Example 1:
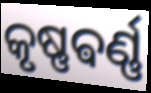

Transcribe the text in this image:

କୃଷ୍ଣଵର୍ଣ୍ଣ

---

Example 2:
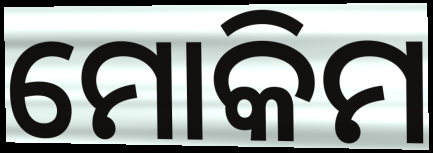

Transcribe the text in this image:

ମୋକିମ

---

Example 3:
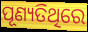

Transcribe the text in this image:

ପୂଣ୍ୟତିଥିରେ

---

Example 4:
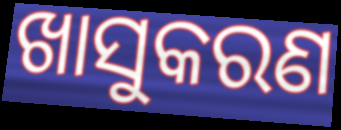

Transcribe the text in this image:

ଖାସୁକରଣ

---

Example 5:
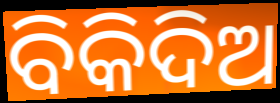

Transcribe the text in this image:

ବିକିଦିଅ